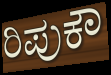
ರಿಪುಕೌ